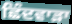
ਛਿੰਦਵਾੜਾ